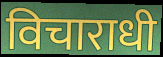
विचाराधी